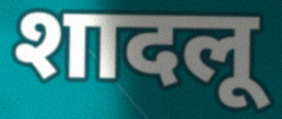
शादलू